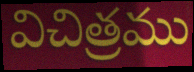
విచిత్రము